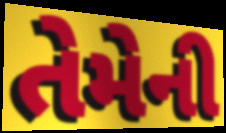
તેમેની